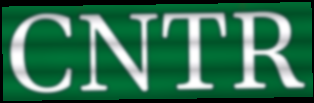
CNTR